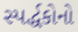
સ્પર્દ્ધકોનો